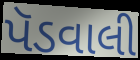
પૅડવાલી